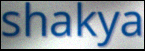
shakya